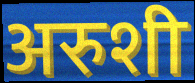
अरुशी